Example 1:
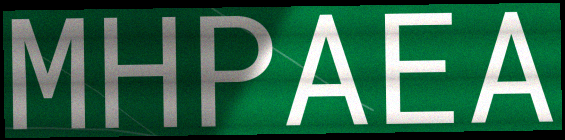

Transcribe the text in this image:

MHPAEA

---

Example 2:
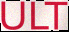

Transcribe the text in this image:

ULT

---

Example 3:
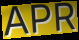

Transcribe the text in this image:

APR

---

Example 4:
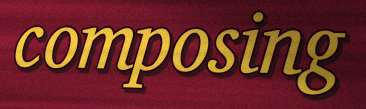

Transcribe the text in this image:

composing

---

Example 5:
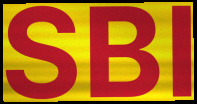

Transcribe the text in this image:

SBI